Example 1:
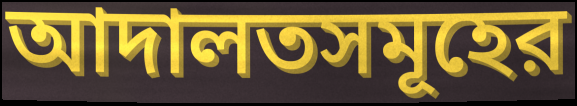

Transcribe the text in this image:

আদালতসমূহের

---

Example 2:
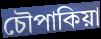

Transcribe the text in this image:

চৌপাকিয়া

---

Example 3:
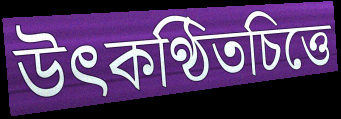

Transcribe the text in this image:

উৎকণ্ঠিতচিত্তে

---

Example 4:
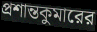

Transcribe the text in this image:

প্রশান্তকুমারের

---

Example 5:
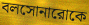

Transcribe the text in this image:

বলসোনারোকে